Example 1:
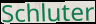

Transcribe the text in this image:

Schluter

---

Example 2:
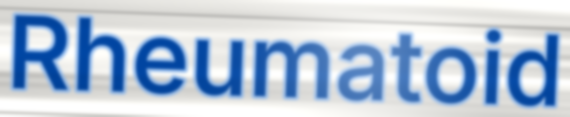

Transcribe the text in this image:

Rheumatoid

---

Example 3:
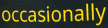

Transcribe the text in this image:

occasionally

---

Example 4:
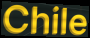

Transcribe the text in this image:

Chile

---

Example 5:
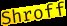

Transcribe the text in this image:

Shroff